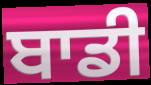
ਬਾਡੀ